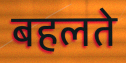
बहलते